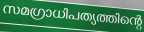
സമഗ്രാധിപത്യത്തിന്റെ